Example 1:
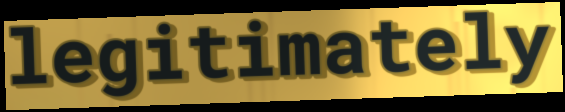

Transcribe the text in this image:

legitimately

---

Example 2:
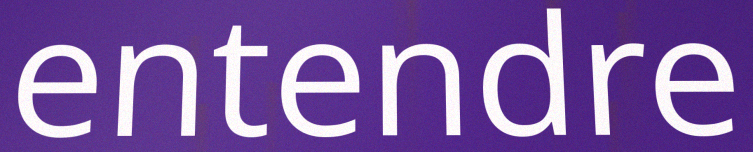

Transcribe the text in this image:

entendre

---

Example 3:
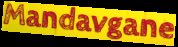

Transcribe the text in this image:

Mandavgane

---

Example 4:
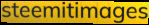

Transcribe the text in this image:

steemitimages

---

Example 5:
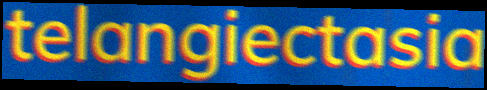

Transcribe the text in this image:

telangiectasia